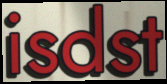
isdst